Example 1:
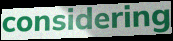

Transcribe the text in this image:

considering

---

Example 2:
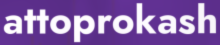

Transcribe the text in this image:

attoprokash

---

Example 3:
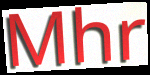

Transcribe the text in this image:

Mhr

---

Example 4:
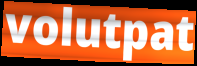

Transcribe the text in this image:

volutpat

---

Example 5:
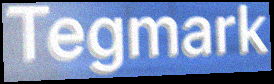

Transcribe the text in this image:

Tegmark